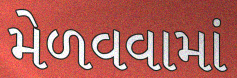
મેળવવામાં